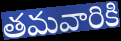
తమవారికి